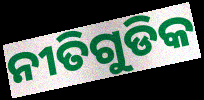
ନୀତିଗୁଡିକ